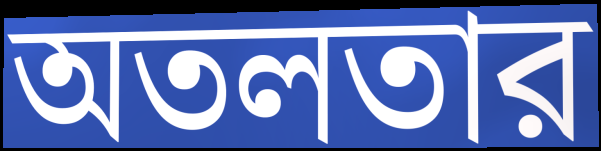
অতলতার